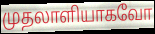
முதலாளியாகவோ